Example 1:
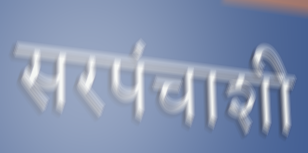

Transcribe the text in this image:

सरपंचाशी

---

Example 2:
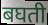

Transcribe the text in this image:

बघती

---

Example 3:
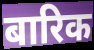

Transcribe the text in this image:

बारिक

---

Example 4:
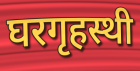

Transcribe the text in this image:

घरगृहस्थी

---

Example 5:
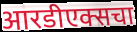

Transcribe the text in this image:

आरडीएक्सचा